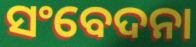
ସଂବେଦନା